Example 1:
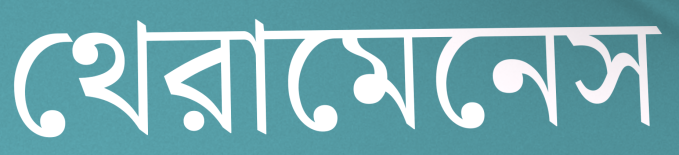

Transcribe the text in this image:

থেরামেনেস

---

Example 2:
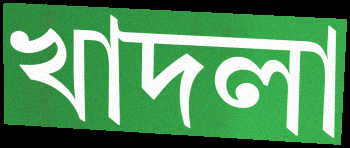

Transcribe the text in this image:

খাদলা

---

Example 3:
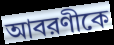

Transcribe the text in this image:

আবরণীকে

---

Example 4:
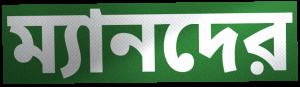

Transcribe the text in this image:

ম্যানদের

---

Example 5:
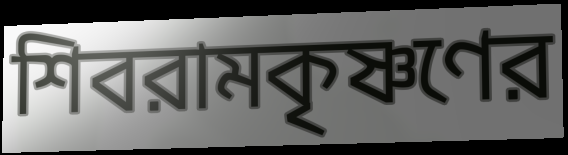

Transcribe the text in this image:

শিবরামকৃষ্ণণের